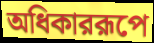
অধিকাররূপে